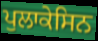
ਪੁਲਾਕੇਸਿਨ